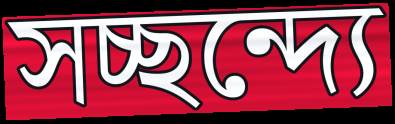
সচ্ছন্দ্যে